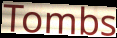
Tombs